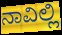
ನಾವಿಲ್ಲಿ